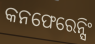
କନଫେରେନ୍ସିଂ